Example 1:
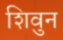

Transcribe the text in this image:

शिवुन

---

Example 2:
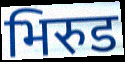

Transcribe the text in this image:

भिरुड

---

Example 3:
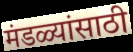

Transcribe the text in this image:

मंडळ्यांसाठी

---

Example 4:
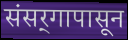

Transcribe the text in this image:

संसर्गापासून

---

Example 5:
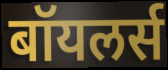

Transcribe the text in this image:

बॉयलर्स